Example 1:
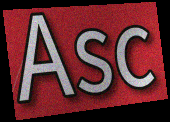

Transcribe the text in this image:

Asc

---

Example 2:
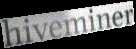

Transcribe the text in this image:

hiveminer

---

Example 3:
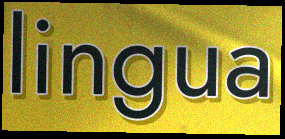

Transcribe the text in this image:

lingua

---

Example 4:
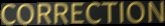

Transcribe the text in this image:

CORRECTION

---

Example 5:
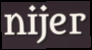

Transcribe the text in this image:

nijer